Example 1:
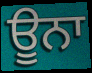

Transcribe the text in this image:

ਊਨਾ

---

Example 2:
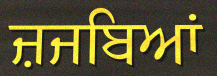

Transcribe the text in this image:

ਜ਼ਜਬਿਆਂ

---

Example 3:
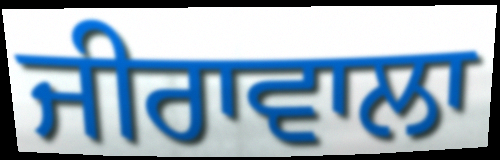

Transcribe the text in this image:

ਜੀਰਾਵਾਲਾ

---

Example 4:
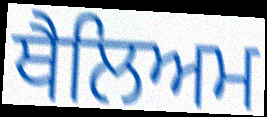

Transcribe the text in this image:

ਥੈਲਿਅਮ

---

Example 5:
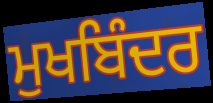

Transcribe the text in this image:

ਮੁਖਬਿੰਦਰ